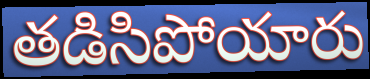
తడిసిపోయారు